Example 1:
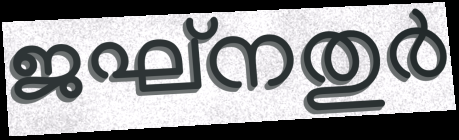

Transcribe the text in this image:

ജഘ്നതുർ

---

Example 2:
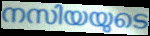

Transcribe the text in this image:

നസിയയുടെ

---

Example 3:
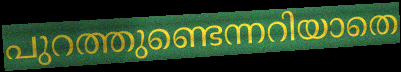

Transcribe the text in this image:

പുറത്തുണ്ടെന്നറിയാതെ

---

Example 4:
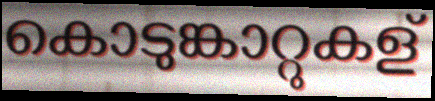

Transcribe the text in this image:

കൊടുങ്കാറ്റുകള്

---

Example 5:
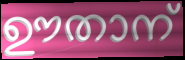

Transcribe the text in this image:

ഊതാന്